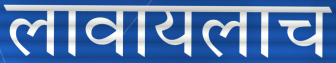
लावायलाच